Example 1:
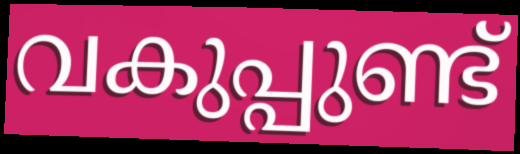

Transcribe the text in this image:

വകുപ്പുണ്ട്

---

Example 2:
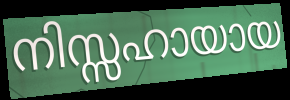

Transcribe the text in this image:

നിസ്സഹായായ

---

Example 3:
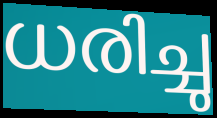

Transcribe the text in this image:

ധരിച്ചു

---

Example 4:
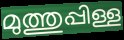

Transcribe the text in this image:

മുത്തുപ്പിള്ള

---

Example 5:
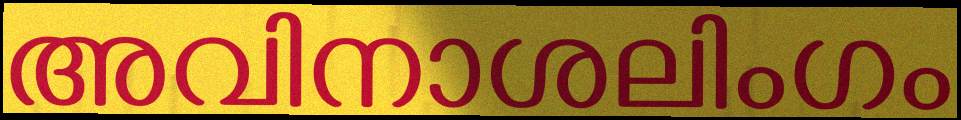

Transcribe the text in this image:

അവിനാശലിംഗം